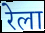
रेला